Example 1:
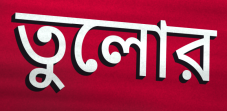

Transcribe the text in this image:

তুলোর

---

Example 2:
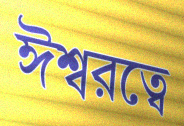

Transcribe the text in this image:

ঈশ্বরত্বে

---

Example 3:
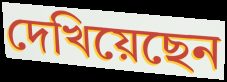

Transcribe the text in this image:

দেখিয়েছেন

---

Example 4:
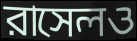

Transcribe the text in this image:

রাসেলও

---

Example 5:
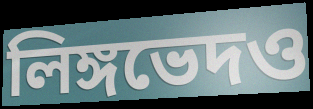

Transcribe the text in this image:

লিঙ্গভেদও